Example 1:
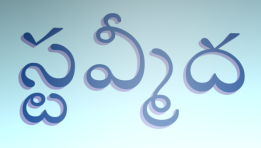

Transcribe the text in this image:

స్టవ్మీద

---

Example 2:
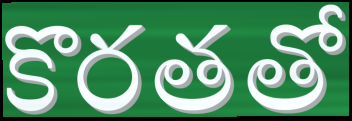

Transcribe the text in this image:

కొరతతో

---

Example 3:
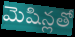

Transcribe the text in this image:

మెషిన్లతో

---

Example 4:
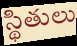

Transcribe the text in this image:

స్థితులు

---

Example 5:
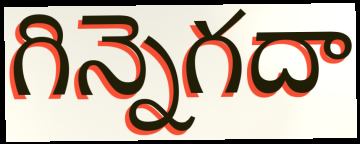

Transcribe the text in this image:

గిన్నెగదా